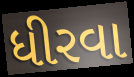
ધીરવા